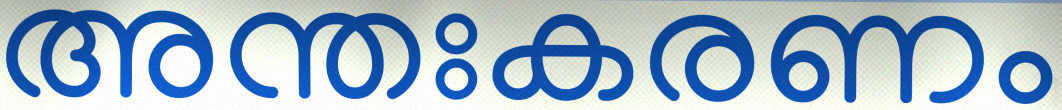
അന്തഃകരണം